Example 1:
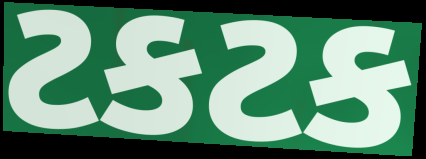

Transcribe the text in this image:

ટકટક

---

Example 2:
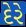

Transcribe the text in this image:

દેરે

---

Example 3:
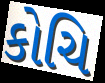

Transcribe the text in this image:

કોચિ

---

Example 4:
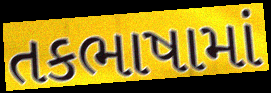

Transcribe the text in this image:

તકભાષામાં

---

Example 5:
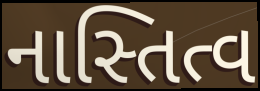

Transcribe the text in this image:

નાસ્તિત્વ